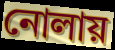
নোলায়